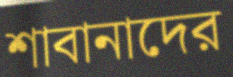
শাবানাদের